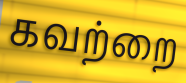
கவற்றை